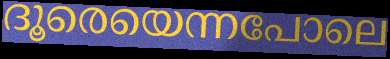
ദൂരെയെന്നപോലെ